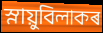
স্নায়ুবিলাকৰ